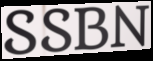
SSBN